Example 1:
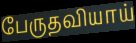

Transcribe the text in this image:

பேருதவியாய்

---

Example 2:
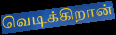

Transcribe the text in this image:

வெடிக்கிறான்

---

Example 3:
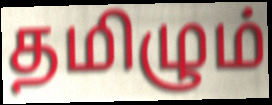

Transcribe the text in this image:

தமிழும்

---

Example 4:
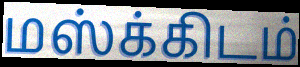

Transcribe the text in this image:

மஸ்க்கிடம்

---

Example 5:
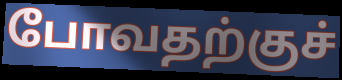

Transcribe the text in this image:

போவதற்குச்